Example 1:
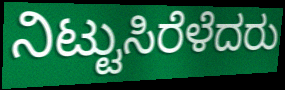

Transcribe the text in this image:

ನಿಟ್ಟುಸಿರೆಳೆದರು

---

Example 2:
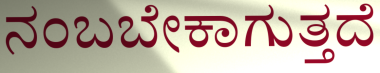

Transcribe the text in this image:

ನಂಬಬೇಕಾಗುತ್ತದೆ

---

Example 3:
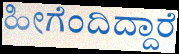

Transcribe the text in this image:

ಹೀಗೆಂದಿದ್ದಾರೆ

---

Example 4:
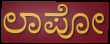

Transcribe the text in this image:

ಲಾಪೋ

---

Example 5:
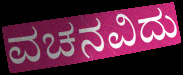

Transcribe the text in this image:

ವಚನವಿದು